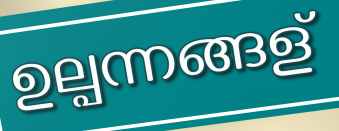
ഉല്പന്നങ്ങള്